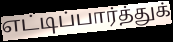
எட்டிப்பார்த்துக்